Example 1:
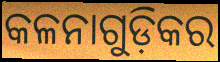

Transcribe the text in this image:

କଳନାଗୁଡ଼ିକର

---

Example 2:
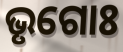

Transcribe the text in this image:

ଭୃଗୋଃ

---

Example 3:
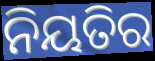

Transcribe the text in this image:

ନିୟତିର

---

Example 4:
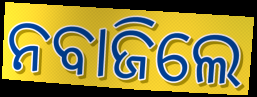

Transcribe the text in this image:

ନବାଜିଲେ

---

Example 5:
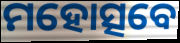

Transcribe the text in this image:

ମହୋତ୍ସବେ